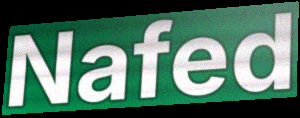
Nafed